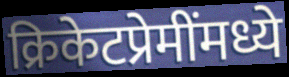
क्रिकेटप्रेमींमध्ये